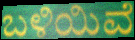
ಬಳಿಯಿವೆ